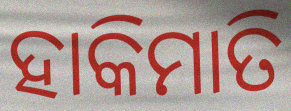
ହାକିମାତି